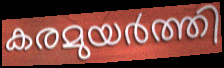
കരമുയർത്തി